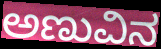
ಅಣುವಿನ